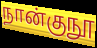
நான்குநூ